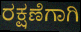
ರಕ್ಷಣೆಗಾಗಿ